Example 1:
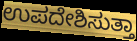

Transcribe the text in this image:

ಉಪದೇಶಿಸುತ್ತಾ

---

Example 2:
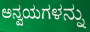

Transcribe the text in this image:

ಅನ್ವಯಗಳನ್ನು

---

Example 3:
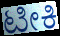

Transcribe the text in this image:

ಟೀಕಿ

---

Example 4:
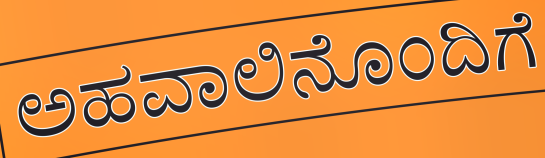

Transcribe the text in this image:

ಅಹವಾಲಿನೊಂದಿಗೆ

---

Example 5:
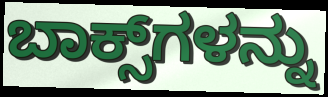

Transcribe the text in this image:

ಬಾಕ್ಸ್‌ಗಳನ್ನು